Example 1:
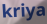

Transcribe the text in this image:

kriya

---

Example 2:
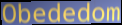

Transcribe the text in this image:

Obededom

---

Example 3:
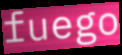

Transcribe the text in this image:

fuego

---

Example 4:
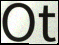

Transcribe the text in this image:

Ot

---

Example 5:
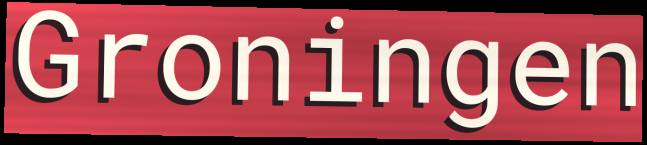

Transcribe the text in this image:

Groningen